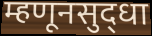
म्हणूनसुद्धा